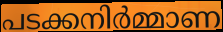
പടക്കനിർമ്മാണ